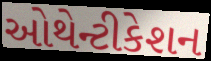
ઓથેન્ટીકેશન